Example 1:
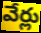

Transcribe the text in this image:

వేర్లు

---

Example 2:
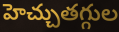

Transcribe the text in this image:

హెచ్చుతగ్గుల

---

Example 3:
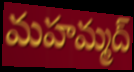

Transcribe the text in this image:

మహమ్మద్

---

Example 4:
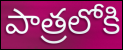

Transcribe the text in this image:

పాత్రలోకి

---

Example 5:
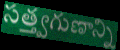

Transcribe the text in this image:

సత్త్వగుణాన్ని